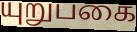
யுறுபகை